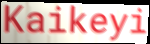
Kaikeyi